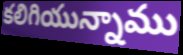
కలిగియున్నాము